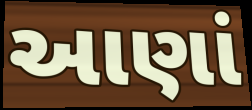
આણાં